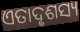
ଏତାଦୃଶସ୍ୟ